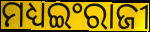
ମଧ୍ୟଇଂରାଜୀ